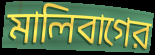
মালিবাগের